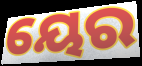
ୟେର